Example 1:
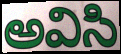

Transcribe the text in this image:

అవిసి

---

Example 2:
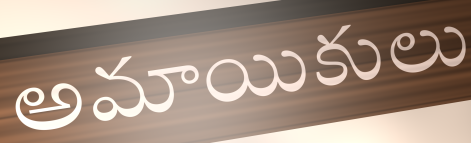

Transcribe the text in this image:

అమాయికులు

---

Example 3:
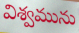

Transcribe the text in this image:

విశ్వమును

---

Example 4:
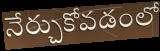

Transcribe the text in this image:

నేర్చుకోవడంలో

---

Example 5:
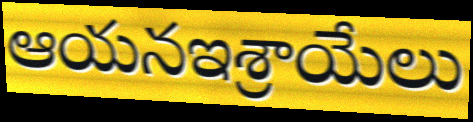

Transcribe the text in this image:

ఆయనఇశ్రాయేలు